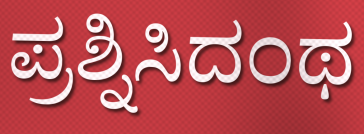
ಪ್ರಶ್ನಿಸಿದಂಥ